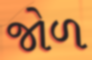
જોળ